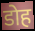
डोह